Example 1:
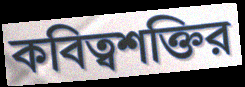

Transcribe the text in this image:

কবিত্বশক্তির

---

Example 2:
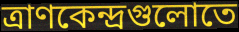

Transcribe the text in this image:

ত্রাণকেন্দ্রগুলোতে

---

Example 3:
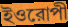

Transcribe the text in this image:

ইওরোপী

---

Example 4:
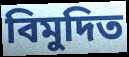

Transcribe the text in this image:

বিমুদিত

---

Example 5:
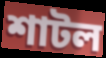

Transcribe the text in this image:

শাটল